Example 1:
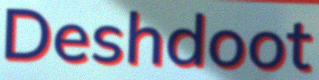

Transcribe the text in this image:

Deshdoot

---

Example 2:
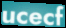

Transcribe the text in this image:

ucecf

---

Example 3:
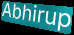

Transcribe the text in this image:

Abhirup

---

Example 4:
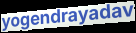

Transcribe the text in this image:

yogendrayadav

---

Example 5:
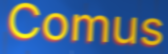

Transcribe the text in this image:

Comus